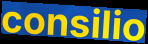
consilio